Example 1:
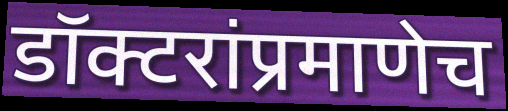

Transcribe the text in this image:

डॉक्टरांप्रमाणेच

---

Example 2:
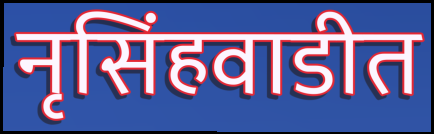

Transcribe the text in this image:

नृसिंहवाडीत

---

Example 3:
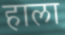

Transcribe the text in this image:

हाला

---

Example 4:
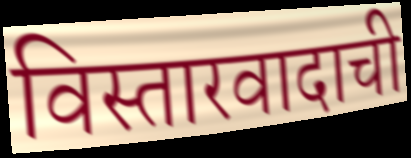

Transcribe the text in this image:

विस्तारवादाची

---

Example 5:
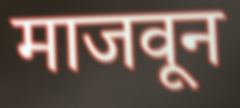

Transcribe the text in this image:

माजवून